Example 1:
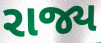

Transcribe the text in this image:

રાજ્ય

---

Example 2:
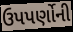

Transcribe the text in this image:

ઉપપર્ણોની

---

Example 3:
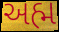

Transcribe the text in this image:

અહ્મ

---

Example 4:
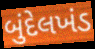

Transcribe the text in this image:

બુંદેલખંડ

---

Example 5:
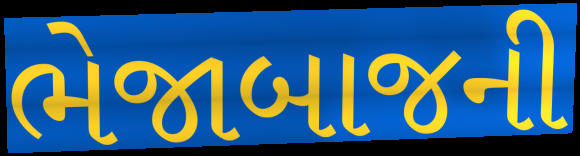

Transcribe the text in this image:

ભેજાબાજની